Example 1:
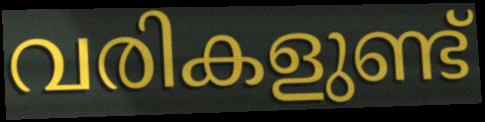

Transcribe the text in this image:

വരികളുണ്ട്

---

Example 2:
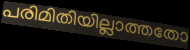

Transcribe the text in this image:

പരിമിതിയില്ലാത്തതോ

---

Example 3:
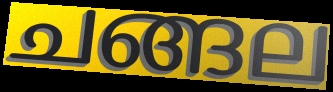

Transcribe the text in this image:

ചങ്ങല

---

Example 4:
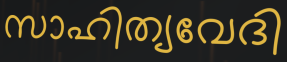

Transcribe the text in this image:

സാഹിത്യവേദി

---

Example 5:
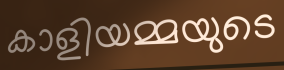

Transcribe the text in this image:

കാളിയമ്മയുടെ